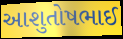
આશુતોષભાઈ